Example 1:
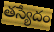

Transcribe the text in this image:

తస్యేదం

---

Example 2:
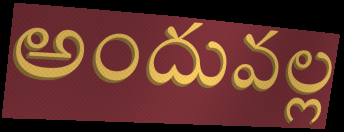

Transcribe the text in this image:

అందువల్ల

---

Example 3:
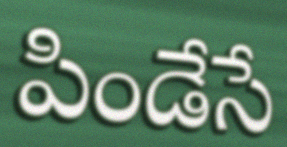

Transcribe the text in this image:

పిండేసే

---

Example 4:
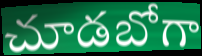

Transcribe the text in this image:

చూడబోగా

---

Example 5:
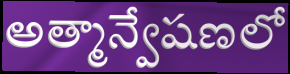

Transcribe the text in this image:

అత్మాన్వేషణలో